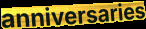
anniversaries